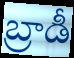
బ్రాడీ